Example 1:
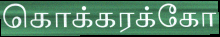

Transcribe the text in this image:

கொக்கரக்கோ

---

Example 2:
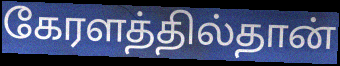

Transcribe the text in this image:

கேரளத்தில்தான்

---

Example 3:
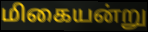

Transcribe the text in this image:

மிகையன்று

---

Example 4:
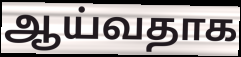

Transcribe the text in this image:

ஆய்வதாக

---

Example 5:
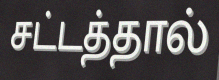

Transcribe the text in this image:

சட்டத்தால்